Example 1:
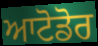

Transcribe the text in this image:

ਆਟੋਡੋਰ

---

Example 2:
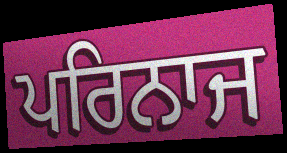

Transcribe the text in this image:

ਪਰਿਨਾਜ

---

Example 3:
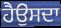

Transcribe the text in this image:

ਹੈਉਸਦਾ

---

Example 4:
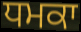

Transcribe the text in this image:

ਧਮਕਾ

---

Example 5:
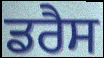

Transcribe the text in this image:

ਡਰੈਸ